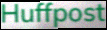
Huffpost